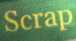
Scrap